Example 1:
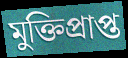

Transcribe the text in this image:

মুক্তিপ্রাপ্ত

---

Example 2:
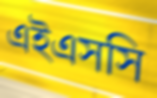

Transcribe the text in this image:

এইএসসি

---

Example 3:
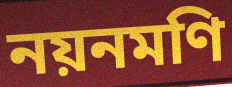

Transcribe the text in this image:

নয়নমণি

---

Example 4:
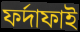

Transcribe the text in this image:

ফর্দাফাই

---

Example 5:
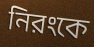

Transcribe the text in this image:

নিরংকে